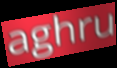
aghru